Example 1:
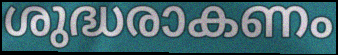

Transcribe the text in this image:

ശുദ്ധരാകണം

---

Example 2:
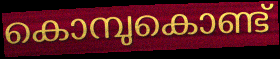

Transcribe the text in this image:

കൊമ്പുകൊണ്ട്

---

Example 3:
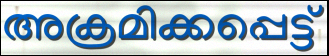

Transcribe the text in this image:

അക്രമിക്കപ്പെട്ട്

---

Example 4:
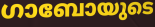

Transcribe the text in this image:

ഗാബോയുടെ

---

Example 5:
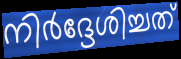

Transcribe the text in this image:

നിർദ്ദേശിച്ചത്